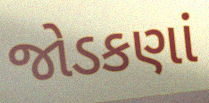
જોડકણાં